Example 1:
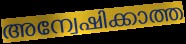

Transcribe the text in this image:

അന്വേഷിക്കാത്ത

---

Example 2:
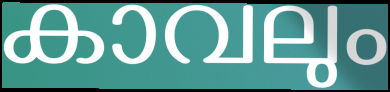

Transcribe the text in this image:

കാവലും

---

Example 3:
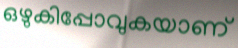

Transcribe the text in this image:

ഒഴുകിപ്പോവുകയാണ്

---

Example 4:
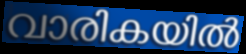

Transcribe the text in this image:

വാരികയിൽ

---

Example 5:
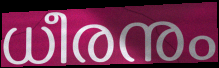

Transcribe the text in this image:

ധീരനും